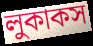
লুকাকস